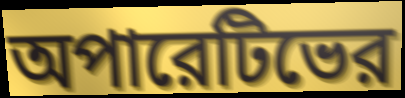
অপারেটিভের